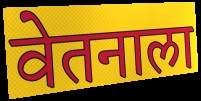
वेतनाला